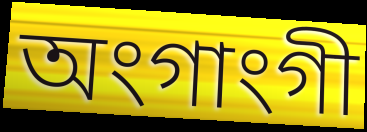
অংগাংগী